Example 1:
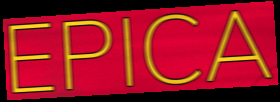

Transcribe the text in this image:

EPICA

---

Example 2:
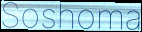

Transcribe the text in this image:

Soshoma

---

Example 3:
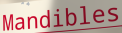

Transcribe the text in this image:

Mandibles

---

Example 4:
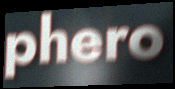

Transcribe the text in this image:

phero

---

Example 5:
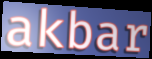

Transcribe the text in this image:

akbar